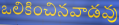
ఒలికించినవాడవు